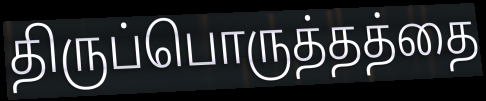
திருப்பொருத்தத்தை